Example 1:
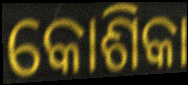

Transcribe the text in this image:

କୋଶିକା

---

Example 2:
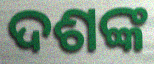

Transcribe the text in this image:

ଦଶଙ୍କ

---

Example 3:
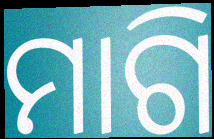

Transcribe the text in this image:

ମାଗି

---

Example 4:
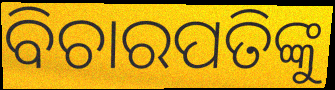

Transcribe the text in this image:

ବିଚାରପତିଙ୍କୁ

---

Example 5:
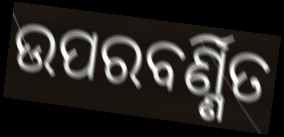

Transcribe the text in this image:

ଉପରବର୍ଣ୍ଣିତ